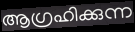
ആഗ്രഹിക്കുന്ന